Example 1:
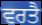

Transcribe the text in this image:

ਵਰਤੈ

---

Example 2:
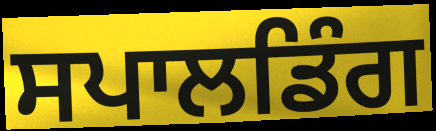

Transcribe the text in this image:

ਸਪਾਲਡਿੰਗ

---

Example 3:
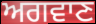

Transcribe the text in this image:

ਅਗਵਾਣ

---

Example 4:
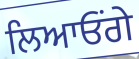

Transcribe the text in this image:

ਲਿਆਓਂਗੇ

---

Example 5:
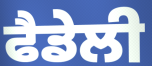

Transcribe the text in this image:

ਫੈਡੇਲੀ